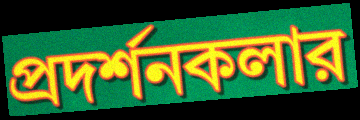
প্রদর্শনকলার